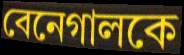
বেনেগালকে